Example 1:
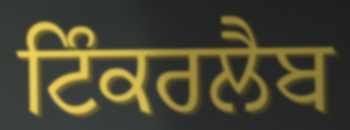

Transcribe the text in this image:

ਟਿੰਕਰਲੈਬ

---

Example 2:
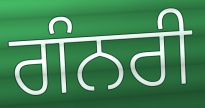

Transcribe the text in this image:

ਗੰਨਰੀ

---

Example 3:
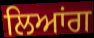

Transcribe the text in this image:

ਲਿਆਂਗ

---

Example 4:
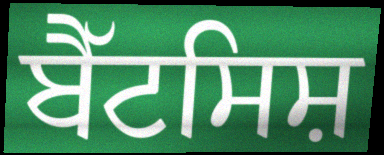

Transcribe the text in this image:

ਬੈੱਟਸਿਸ਼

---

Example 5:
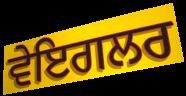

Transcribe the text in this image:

ਵੇਇਗਲਰ